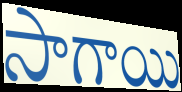
సాగాయి